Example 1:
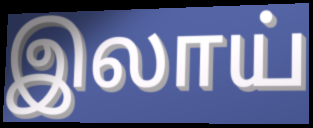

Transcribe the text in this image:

இலாய்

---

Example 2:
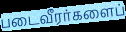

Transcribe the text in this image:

படைவீரர்களைப்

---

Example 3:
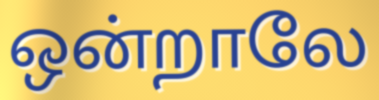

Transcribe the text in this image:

ஒன்றாலே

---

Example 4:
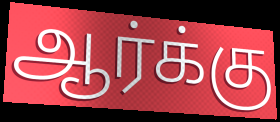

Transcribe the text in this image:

ஆர்க்கு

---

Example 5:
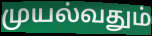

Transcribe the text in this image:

முயல்வதும்